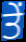
ਤੇੰ